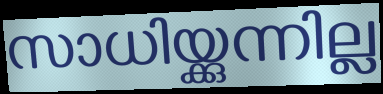
സാധിയ്ക്കുന്നില്ല